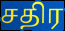
சதிர